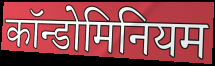
कॉन्डोमिनियम